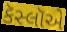
કૅસ્લૉએ